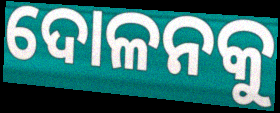
ଦୋଳନକୁ